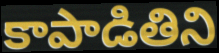
కాపాడితిని